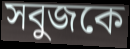
সবুজকে